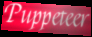
Puppeteer